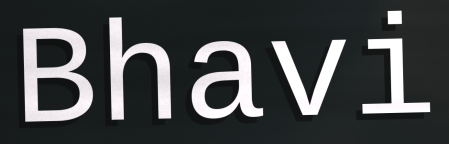
Bhavi